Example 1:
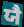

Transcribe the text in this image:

ਯੈ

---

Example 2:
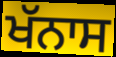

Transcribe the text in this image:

ਖੱਨਾਸ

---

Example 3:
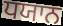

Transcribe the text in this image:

ਧਯਾਨ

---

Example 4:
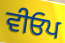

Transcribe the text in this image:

ਵੀਓਪ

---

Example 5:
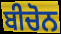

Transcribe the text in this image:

ਬੀਚੋਨ